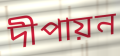
দীপায়ন